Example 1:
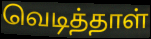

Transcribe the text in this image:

வெடித்தாள்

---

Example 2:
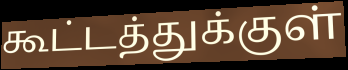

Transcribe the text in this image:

கூட்டத்துக்குள்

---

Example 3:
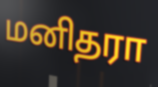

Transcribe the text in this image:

மனிதரா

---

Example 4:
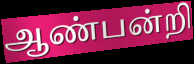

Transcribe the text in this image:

ஆண்பன்றி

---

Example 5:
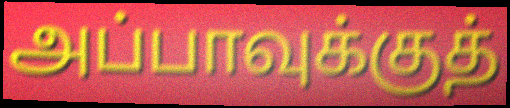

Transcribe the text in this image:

அப்பாவுக்குத்